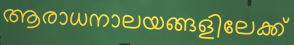
ആരാധനാലയങ്ങളിലേക്ക്